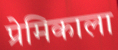
प्रेमिकाला